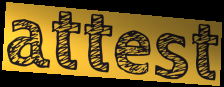
attest